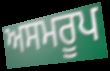
ਅਸਮਰੂਪ